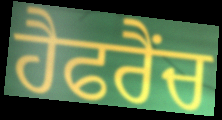
ਹੈਫਰੈਂਚ